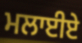
ਮਲਾਈਏ